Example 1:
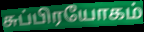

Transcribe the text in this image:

சுப்பிரயோகம்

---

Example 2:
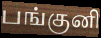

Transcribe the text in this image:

பங்குனி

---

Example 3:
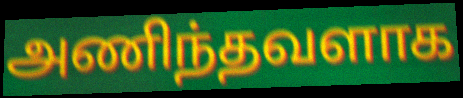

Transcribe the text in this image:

அணிந்தவளாக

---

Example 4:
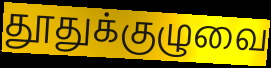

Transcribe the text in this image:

தூதுக்குழுவை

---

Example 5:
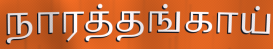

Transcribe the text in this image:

நாரத்தங்காய்